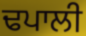
ਢਪਾਲੀ